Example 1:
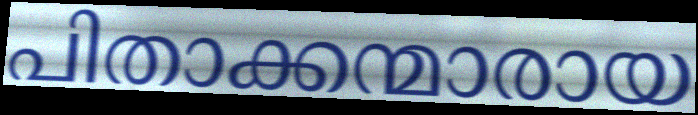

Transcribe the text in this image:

പിതാക്കന്മാരായ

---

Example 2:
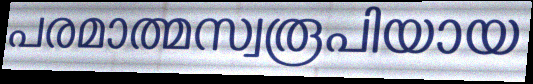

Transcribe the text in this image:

പരമാത്മസ്വരൂപിയായ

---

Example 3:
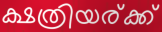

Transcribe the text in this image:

ക്ഷത്രിയര്ക്ക്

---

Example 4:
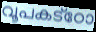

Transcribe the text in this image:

വൂപകട്ഠോ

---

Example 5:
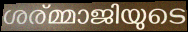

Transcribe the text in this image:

ശര്മ്മാജിയുടെ